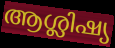
ആശ്ലിഷ്യ